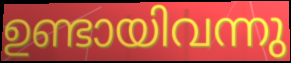
ഉണ്ടായിവന്നു